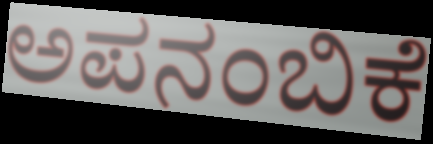
ಅಪನಂಬಿಕೆ